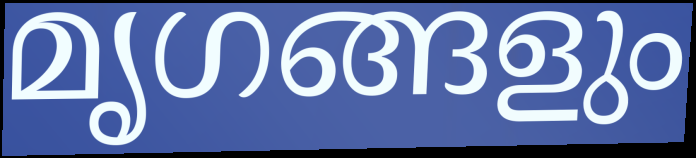
മൃഗങ്ങളും